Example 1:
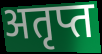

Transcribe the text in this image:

अतृप्त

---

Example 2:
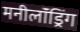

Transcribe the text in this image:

मनीलॉंड्रिंग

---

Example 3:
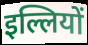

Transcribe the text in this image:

इल्लियों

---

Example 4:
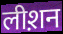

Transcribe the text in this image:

लीश़न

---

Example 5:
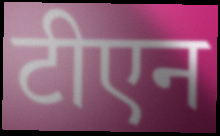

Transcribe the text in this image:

टीएन